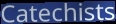
Catechists